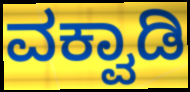
ವಕ್ವಾಡಿ